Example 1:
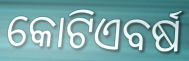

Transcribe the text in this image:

କୋଟିଏବର୍ଷ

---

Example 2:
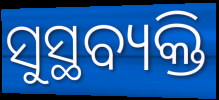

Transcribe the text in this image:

ସୁସ୍ଥବ୍ୟକ୍ତି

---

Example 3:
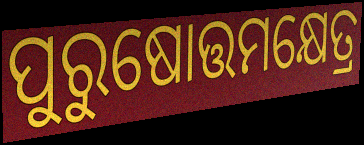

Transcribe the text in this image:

ପୁରୁଷୋତ୍ତମକ୍ଷେତ୍ର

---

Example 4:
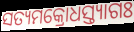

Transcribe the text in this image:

ସତ୍ୟମକ୍ରୋଧସ୍ତ୍ୟାଗଃ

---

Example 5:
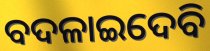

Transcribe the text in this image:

ବଦଳାଇଦେବି